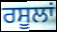
ਰਸੂਲਾਂ